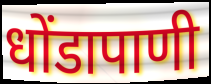
धोंडापाणी